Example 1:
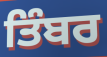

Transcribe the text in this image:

ਤਿੰਬਰ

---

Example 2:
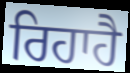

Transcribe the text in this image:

ਰਿਹਾਹੈ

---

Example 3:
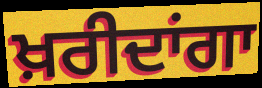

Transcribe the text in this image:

ਖ਼ਰੀਦਾਂਗਾ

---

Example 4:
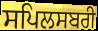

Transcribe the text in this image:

ਸਪਿਲਸਬਰੀ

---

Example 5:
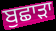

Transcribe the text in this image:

ਬੁਛਾੜਾ